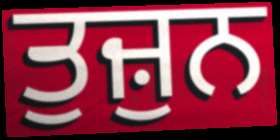
ਤੁਜ਼ੁਨ